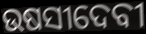
ଉଷସୀଦେବୀ